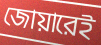
জোয়ারেই